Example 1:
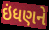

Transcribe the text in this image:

ઇંધણને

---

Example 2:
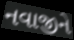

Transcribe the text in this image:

નવાજીને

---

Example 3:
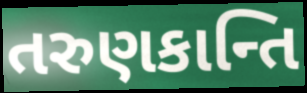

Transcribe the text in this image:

તરુણકાન્તિ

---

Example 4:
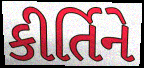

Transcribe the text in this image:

કીર્તિને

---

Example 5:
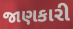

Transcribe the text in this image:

જાણકારી